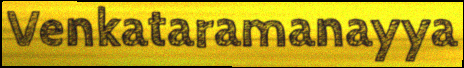
Venkataramanayya